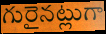
గురైనట్లుగా